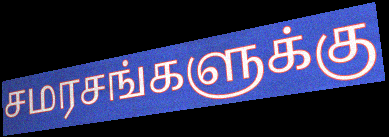
சமரசங்களுக்கு